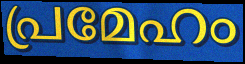
പ്രമേഹം